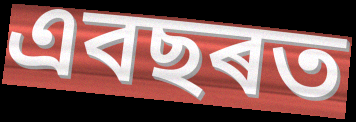
এবছৰত